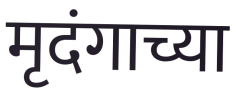
मृदंगाच्या